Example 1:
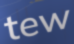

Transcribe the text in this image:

tew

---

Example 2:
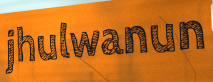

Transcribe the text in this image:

jhulwanun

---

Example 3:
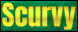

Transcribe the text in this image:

Scurvy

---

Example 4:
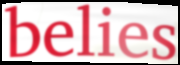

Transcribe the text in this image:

belies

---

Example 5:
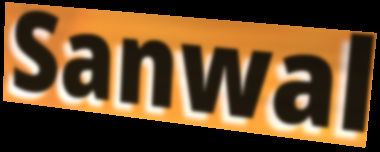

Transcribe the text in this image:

Sanwal